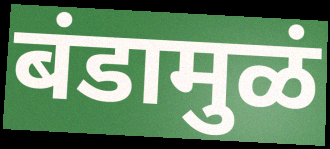
बंडामुळं